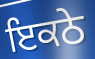
ਇਕਠੇ